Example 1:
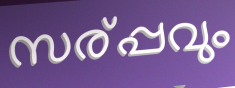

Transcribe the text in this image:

സര്പ്പവും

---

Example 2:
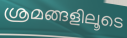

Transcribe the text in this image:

ശ്രമങ്ങളിലൂടെ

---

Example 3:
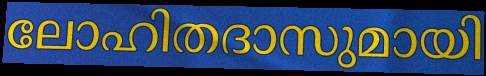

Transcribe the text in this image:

ലോഹിതദാസുമായി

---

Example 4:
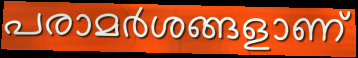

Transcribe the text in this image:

പരാമർശങ്ങളാണ്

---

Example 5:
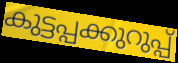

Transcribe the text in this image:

കുട്ടപ്പക്കുറുപ്പ്